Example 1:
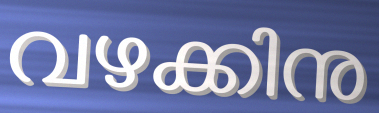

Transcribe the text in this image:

വഴക്കിനു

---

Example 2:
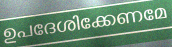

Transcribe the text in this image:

ഉപദേശിക്കേണമേ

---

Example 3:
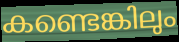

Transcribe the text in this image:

കണ്ടെങ്കിലും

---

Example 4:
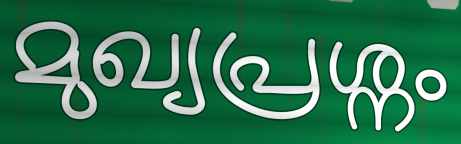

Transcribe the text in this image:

മുഖ്യപ്രശ്നം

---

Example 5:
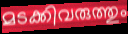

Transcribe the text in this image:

മടക്കിവരുത്തും